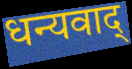
धन्यवाद्